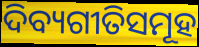
ଦିବ୍ୟଗୀତିସମୂହ